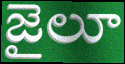
జైలూ